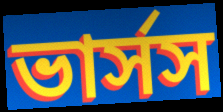
ভার্সস